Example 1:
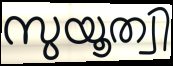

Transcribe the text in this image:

സുയൂത്വി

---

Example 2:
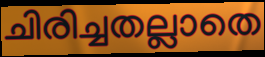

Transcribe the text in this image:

ചിരിച്ചതല്ലാതെ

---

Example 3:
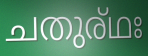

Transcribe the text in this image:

ചതുര്ഥഃ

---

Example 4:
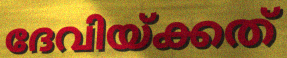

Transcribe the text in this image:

ദേവിയ്ക്കത്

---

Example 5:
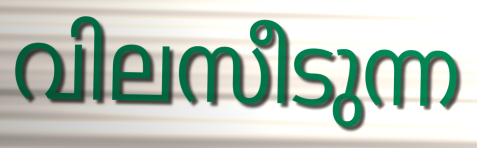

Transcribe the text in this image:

വിലസീടുന്ന